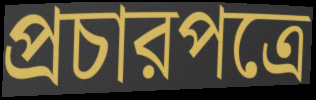
প্রচারপত্রে